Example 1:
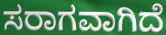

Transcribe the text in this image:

ಸರಾಗವಾಗಿದೆ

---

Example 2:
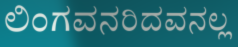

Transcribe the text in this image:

ಲಿಂಗವನರಿದವನಲ್ಲ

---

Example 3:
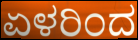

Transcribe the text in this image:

ಏಳರಿಂದ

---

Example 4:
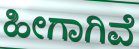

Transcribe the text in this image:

ಹೀಗಾಗಿವೆ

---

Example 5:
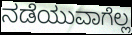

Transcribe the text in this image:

ನಡೆಯುವಾಗೆಲ್ಲ